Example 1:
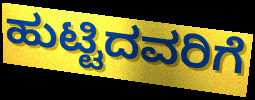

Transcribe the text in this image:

ಹುಟ್ಟಿದವರಿಗೆ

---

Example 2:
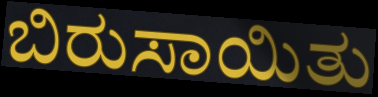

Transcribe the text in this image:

ಬಿರುಸಾಯಿತು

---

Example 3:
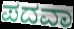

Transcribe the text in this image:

ಪದವಾ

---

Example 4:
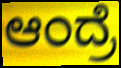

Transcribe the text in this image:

ಆಂದ್ರೆ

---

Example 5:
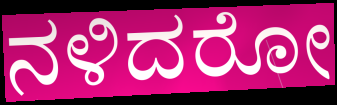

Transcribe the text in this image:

ನಳಿದರೋ